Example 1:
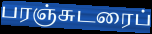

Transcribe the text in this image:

பரஞ்சுடரைப்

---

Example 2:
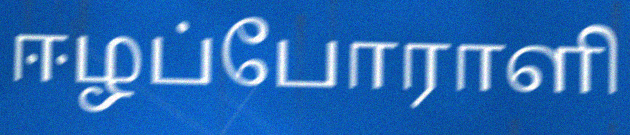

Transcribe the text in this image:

ஈழப்போராளி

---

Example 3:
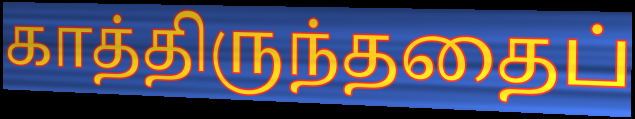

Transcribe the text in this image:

காத்திருந்ததைப்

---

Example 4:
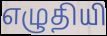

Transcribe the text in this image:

எழுதியி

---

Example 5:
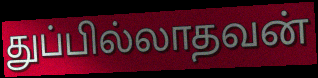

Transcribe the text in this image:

துப்பில்லாதவன்